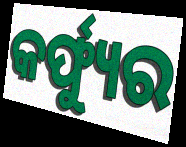
କର୍ଫ୍ୟୁର